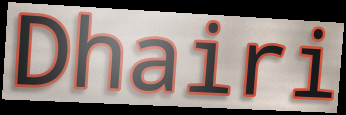
Dhairi